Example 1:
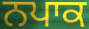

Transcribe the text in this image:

ਨਪਾਕ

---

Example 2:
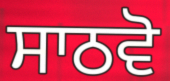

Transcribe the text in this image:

ਸਾਠਵੋ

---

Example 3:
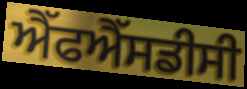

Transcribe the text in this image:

ਐੱਫਐੱਸਡੀਸੀ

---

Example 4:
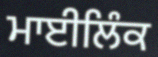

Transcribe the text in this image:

ਮਾਈਲਿੰਕ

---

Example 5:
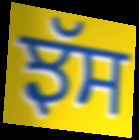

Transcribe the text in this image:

ਝੱਸ